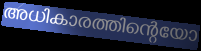
അധികാരത്തിന്റെയോ